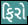
ફિરો